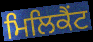
ਮਿਲਿਕੈਂਟ